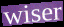
wiser